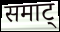
समाट्